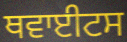
ਥਵਾਈਟਸ